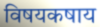
विषयकषाय